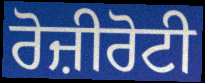
ਰੋਜ਼ੀਰੋਟੀ